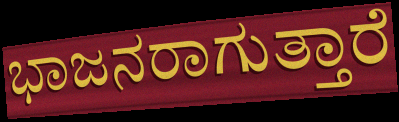
ಭಾಜನರಾಗುತ್ತಾರೆ